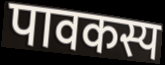
पावकस्य